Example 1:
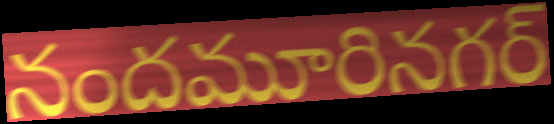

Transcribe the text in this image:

నందమూరినగర్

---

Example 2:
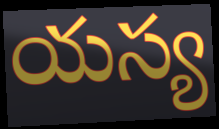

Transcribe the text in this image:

యస్య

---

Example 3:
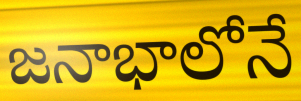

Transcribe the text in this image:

జనాభాలోనే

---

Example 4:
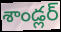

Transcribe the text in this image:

శాండ్లర్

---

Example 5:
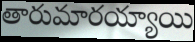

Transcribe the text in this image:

తారుమారయ్యాయి